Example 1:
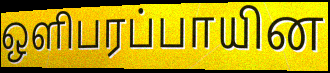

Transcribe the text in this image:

ஒளிபரப்பாயின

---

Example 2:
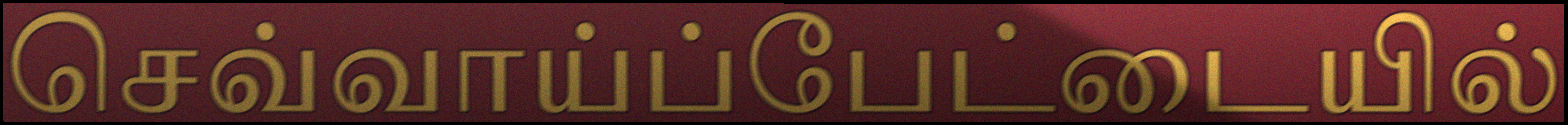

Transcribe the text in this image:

செவ்வாய்ப்பேட்டையில்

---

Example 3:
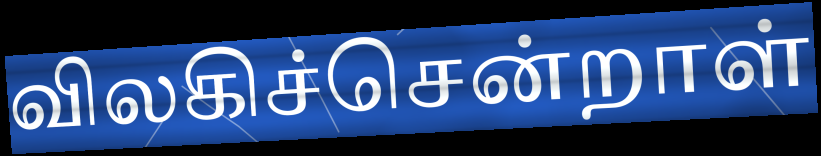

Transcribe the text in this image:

விலகிச்சென்றாள்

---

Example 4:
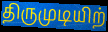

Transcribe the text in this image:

திருமுடியிற்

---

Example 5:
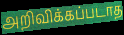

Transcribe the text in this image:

அறிவிக்கப்படாத